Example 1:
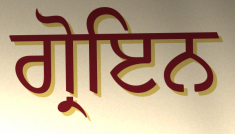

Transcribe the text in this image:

ਗ੍ਰੋਇਨ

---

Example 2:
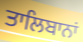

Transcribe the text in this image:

ਤਾਲਿਬਾਨਾਂ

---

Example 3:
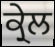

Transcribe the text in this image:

ਕ੍ਰੇਲ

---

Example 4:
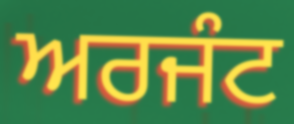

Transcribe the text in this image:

ਅਰਜੰਟ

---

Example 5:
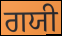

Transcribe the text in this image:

ਗਯੀ